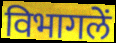
विभागलें